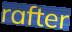
rafter